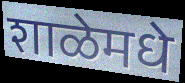
शाळेमधे